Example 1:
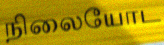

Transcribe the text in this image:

நிலையோட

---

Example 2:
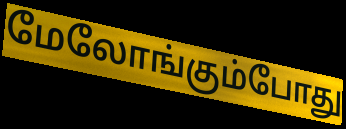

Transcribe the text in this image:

மேலோங்கும்போது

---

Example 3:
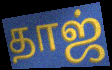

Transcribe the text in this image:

தாஜ்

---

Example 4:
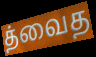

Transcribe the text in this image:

த்வைத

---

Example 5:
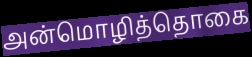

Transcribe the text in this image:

அன்மொழித்தொகை